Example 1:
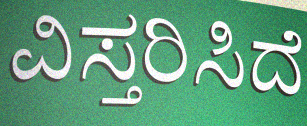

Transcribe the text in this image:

ವಿಸ್ತರಿಸಿದೆ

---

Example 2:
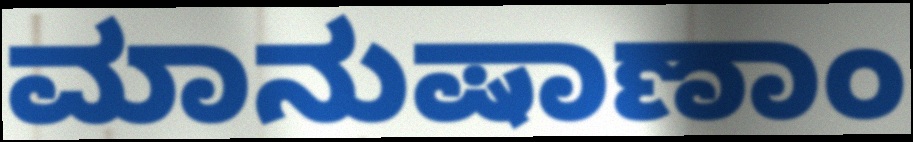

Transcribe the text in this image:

ಮಾನುಷಾಣಾಂ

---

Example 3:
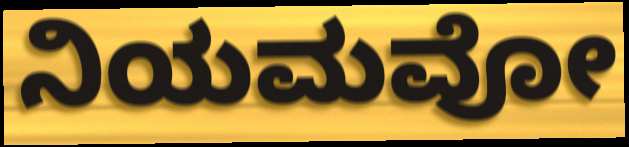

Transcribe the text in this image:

ನಿಯಮವೋ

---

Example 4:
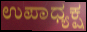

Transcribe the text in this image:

ಉಪಾಧ್ಯಕ್ಷ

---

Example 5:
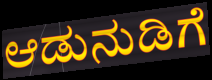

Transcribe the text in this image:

ಆಡುನುಡಿಗೆ